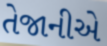
તેજાનીએ